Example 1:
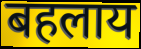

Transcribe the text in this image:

बहलाय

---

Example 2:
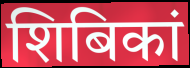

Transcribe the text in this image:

शिबिकां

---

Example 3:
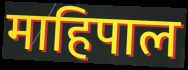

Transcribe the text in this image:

माहिपाल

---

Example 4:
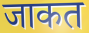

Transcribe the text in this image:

जाकत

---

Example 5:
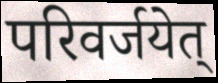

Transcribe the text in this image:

परिवर्जयेत्